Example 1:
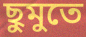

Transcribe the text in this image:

ছুমুতে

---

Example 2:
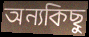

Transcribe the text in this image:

অন্যকিছু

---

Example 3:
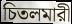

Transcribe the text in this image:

চিতলমারী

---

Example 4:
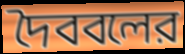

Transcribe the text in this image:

দৈববলের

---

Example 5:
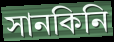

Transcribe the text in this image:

সানকিনি